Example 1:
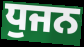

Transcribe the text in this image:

ਧੁਜਨ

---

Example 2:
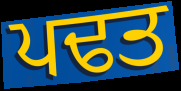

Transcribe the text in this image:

ਪਢਤ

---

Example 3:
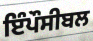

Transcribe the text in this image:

ਇੰਪੌਸੀਬਲ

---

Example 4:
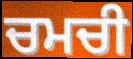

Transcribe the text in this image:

ਚਮਚੀ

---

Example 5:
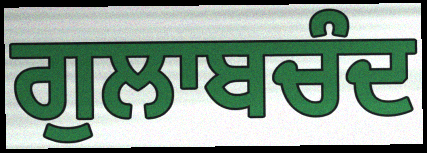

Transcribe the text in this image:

ਗੁਲਾਬਚੰਦ